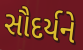
સૌદર્યને